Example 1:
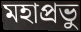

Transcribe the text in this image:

মহাপ্রভু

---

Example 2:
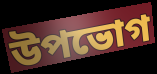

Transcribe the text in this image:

উপভোগ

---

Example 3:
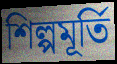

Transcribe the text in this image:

শিল্পমূর্তি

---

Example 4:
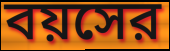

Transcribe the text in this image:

বয়সের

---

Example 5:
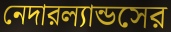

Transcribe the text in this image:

নেদারল্যান্ডসের